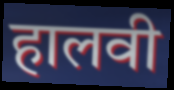
हालवी